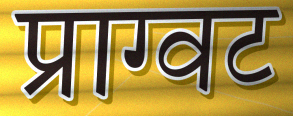
प्राग्वट